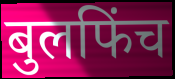
बुलफिंच